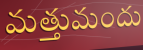
మత్తుమందు